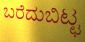
ಬರೆದುಬಿಟ್ಟ